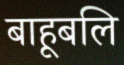
बाहूबलि